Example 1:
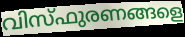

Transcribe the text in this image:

വിസ്ഫുരണങ്ങളെ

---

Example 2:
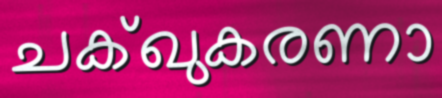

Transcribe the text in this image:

ചക്ഖുകരണാ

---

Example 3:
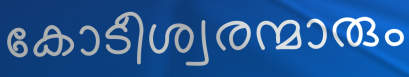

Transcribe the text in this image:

കോടീശ്വരന്മാരും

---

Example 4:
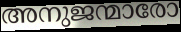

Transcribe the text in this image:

അനുജന്മാരോ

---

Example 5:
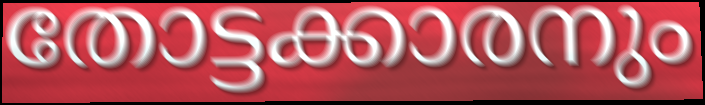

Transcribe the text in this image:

തോട്ടക്കാരനും